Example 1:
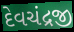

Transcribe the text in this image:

દેવચંદ્રજી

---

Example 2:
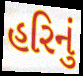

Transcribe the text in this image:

હરિનું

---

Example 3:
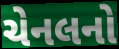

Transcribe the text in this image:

ચેનલનો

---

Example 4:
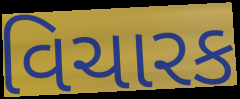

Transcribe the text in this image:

વિચારક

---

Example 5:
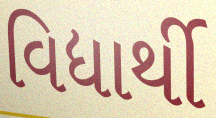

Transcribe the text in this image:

વિદ્યાર્થી